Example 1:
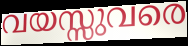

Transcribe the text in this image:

വയസ്സുവരെ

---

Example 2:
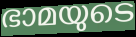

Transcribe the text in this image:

ഭാമയുടെ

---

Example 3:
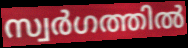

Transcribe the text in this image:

സ്വർഗത്തിൽ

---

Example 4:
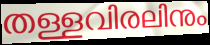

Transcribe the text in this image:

തള്ളവിരലിനും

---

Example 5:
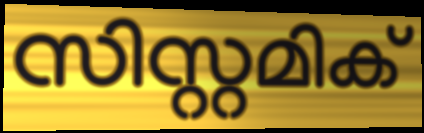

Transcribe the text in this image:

സിസ്റ്റമിക്